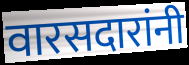
वारसदारांनी